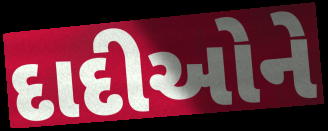
દાદીઓને